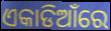
ଏକାଡିଆଁରେ